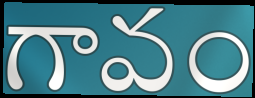
గావం